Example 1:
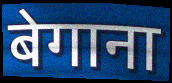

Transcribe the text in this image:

बेगाना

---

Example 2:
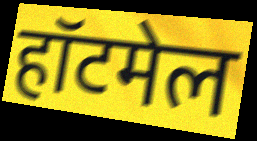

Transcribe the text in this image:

हॉटमेल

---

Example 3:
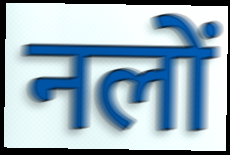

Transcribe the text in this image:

नलों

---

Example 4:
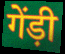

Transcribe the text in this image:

गेंड़ी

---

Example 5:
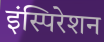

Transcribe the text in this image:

इंस्पिरेशन